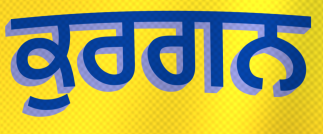
ਕੁਰਗਨ